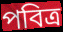
পবিত্র